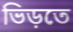
ভিড়তে